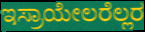
ಇಸ್ರಾಯೇಲರೆಲ್ಲರ